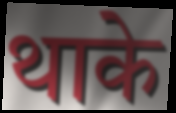
थाके